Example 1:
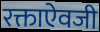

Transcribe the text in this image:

रक्ताऐवजी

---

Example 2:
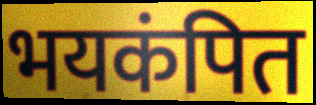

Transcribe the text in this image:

भयकंपित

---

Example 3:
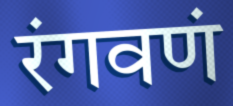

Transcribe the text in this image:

रंगवणं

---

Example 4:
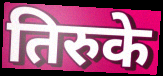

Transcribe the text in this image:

तिरुके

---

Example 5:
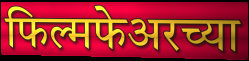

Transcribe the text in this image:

फिल्मफेअरच्या